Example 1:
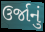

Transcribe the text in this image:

ઉર્જાનું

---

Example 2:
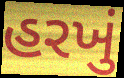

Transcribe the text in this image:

હરખું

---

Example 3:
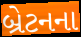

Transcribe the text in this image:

બ્રેટનના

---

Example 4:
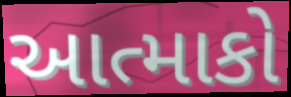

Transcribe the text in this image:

આત્માકો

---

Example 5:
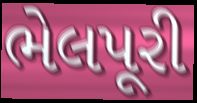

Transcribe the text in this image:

ભેલપૂરી